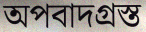
অপবাদগ্রস্ত